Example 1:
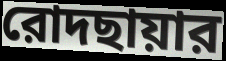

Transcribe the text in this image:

রোদছায়ার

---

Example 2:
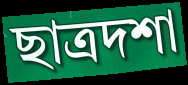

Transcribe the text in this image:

ছাত্রদশা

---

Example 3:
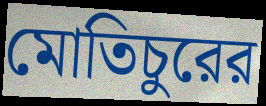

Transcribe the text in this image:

মোতিচুরের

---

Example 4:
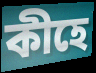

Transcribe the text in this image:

কীহে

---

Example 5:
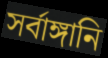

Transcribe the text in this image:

সর্বাঙ্গানি